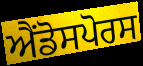
ਐਂਡੋਸਪੋਰਸ